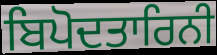
ਬਿਪੋਦਤਾਰਿਨੀ